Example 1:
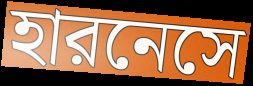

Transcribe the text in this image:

হারনেসে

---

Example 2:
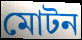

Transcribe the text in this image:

মোটন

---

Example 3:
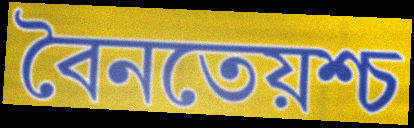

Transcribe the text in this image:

বৈনতেয়শ্চ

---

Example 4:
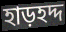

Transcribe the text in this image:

হাড়হদ্দ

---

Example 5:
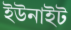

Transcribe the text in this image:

ইউনাইট